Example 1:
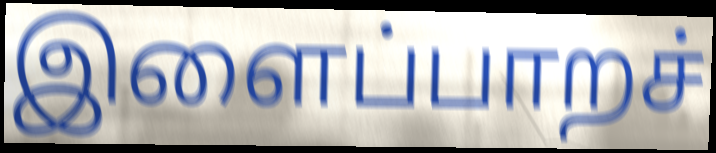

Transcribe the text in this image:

இளைப்பாறச்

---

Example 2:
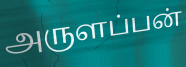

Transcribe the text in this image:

அருளப்பன்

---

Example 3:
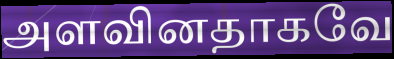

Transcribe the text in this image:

அளவினதாகவே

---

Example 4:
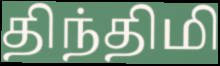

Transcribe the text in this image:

திந்திமி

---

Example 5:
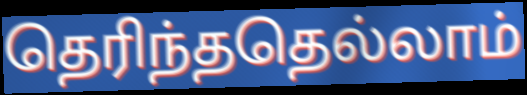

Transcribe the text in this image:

தெரிந்ததெல்லாம்